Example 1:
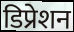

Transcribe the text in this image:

डिप्रेशन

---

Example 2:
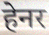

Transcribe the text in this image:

हेनर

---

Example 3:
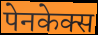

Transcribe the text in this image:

पेनकेक्स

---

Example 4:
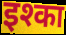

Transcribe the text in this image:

इश्का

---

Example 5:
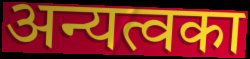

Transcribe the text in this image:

अन्यत्वका